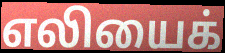
எலியைக்